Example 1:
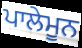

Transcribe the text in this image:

ਪਾਲੇਮੂਨ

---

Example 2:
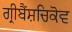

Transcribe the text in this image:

ਗ੍ਰੀਬੈਂਸ਼ਚਿਕੋਵ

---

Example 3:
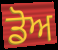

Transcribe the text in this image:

ਡੋਅ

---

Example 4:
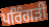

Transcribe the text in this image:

ਪਰਿੰਗੜੀ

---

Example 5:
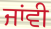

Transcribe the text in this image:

ਜਾਂਵੀ